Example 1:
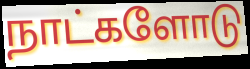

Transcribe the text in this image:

நாட்களோடு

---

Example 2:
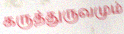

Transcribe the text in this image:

கருத்துருவமும்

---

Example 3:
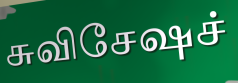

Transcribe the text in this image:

சுவிசேஷச்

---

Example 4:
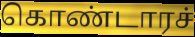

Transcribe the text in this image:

கொண்டாரச்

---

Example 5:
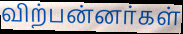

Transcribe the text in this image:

விற்பன்னர்கள்